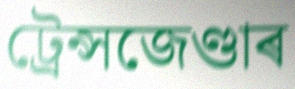
ট্ৰেন্সজেণ্ডাৰ